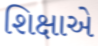
શિક્ષાએ